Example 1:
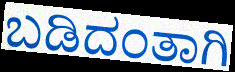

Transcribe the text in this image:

ಬಡಿದಂತಾಗಿ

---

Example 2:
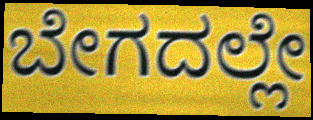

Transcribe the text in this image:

ಬೇಗದಲ್ಲೇ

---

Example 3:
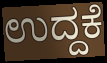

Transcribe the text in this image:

ಉದ್ದಕೆ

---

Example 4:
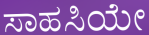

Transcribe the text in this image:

ಸಾಹಸಿಯೇ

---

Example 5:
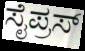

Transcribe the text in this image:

ಸೈಪ್ರಸ್